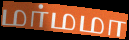
மர்மமா